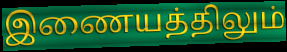
இணையத்திலும்